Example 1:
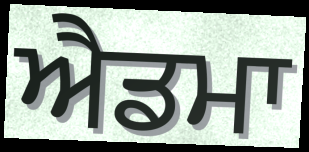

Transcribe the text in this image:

ਐਡਮਾ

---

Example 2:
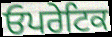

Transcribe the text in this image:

ਓਪਰੇਟਿਕ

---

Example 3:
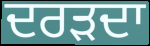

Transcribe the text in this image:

ਦਰੜਦਾ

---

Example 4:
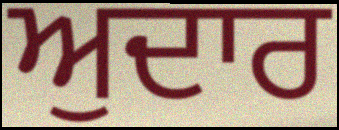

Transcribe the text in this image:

ਅੁਦਾਰ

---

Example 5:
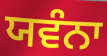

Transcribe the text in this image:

ਯਵੰਨਾ